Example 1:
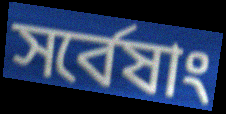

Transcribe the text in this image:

সর্বেষাং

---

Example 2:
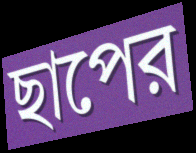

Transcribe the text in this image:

ছাপের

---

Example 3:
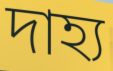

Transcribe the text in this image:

দাহ্য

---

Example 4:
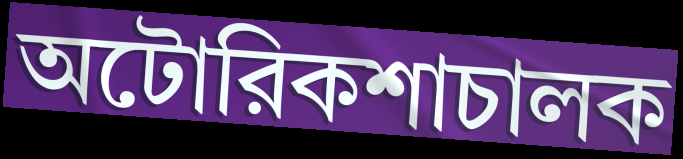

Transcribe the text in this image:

অটোরিকশাচালক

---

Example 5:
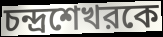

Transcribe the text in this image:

চন্দ্রশেখরকে